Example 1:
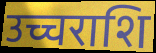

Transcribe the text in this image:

उच्चराशि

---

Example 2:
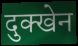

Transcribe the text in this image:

दुक्खेन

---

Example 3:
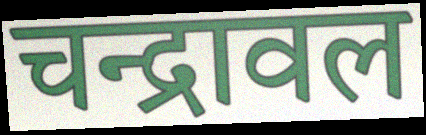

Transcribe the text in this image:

चन्द्रावल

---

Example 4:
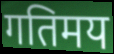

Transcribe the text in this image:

गतिमय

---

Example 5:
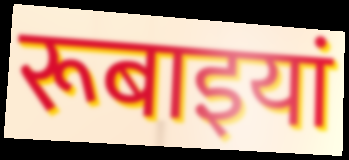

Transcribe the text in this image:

रूबाइयां